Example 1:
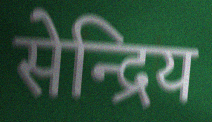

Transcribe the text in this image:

सेन्द्रिय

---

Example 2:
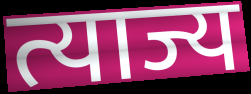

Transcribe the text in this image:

त्याज्य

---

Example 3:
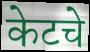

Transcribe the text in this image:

केटचे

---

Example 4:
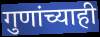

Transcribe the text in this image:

गुणांच्याही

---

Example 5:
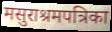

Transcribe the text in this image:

मसुराश्रमपत्रिका